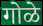
गोळे